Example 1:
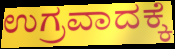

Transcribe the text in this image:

ಉಗ್ರವಾದಕ್ಕೆ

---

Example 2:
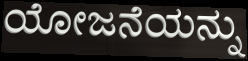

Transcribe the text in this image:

ಯೋಜನೆಯನ್ನು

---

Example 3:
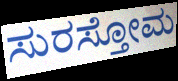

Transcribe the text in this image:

ಸುರಸ್ತೋಮ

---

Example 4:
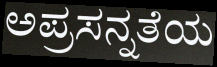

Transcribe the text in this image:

ಅಪ್ರಸನ್ನತೆಯ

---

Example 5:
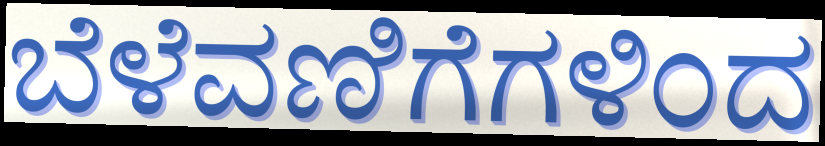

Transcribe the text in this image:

ಬೆಳೆವಣಿಗೆಗಳಿಂದ